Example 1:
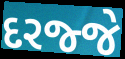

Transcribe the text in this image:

દરજ્જે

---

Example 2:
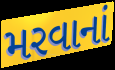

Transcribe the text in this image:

મરવાનાં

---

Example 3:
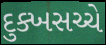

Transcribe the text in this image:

દુક્ખસચ્ચે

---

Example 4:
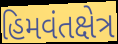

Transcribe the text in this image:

હિમવંતક્ષેત્ર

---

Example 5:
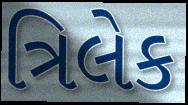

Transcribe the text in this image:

ત્રિલેક